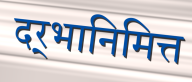
दर्भानिमित्त